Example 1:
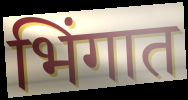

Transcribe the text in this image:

भिंगात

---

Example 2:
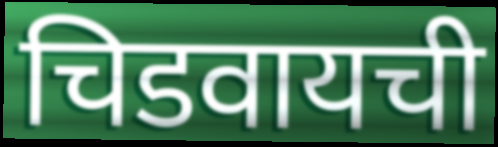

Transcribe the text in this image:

चिडवायची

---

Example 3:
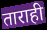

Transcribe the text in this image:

ताराही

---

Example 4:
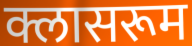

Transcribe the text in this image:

क्लासरूम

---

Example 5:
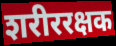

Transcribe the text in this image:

शरीररक्षक